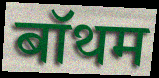
बॉथम